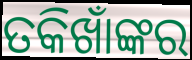
ତକିଖାଁଙ୍କର